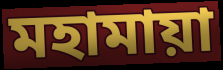
মহামায়া